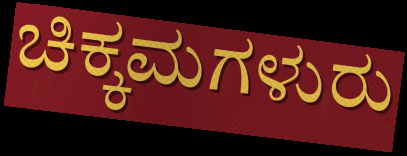
ಚಿಕ್ಕಮಗಳುರು